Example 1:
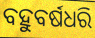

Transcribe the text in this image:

ବହୁବର୍ଷଧରି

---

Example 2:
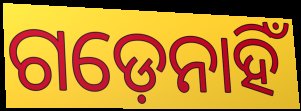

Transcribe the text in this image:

ଗଡ଼େନାହିଁ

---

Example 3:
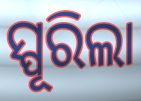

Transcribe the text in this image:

ସ୍ପୂରିଲା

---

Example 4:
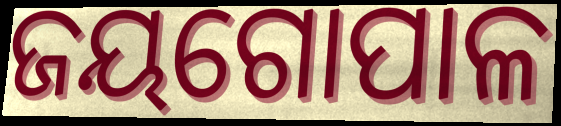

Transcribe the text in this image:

ଜୟଗୋପାଳ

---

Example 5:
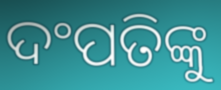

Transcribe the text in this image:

ଦଂପତିଙ୍କୁ